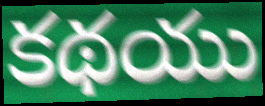
కథయు